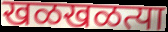
खळखळत्या